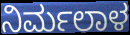
ನಿರ್ಮಲಾಳ